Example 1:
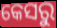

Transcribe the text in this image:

କେସରୁ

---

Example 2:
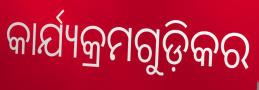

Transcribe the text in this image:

କାର୍ଯ୍ୟକ୍ରମଗୁଡ଼ିକର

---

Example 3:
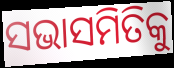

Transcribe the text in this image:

ସଭାସମିତିକୁ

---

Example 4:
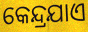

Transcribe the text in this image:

କେନ୍ଦ୍ରଯାଏ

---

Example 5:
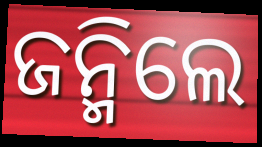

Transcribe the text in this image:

ଜନ୍ମିଲେ